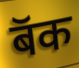
बॅक